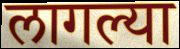
लागल्‍या